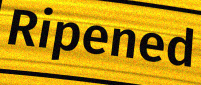
Ripened